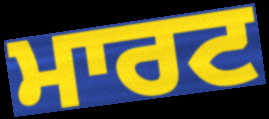
ਮਾਰਟ